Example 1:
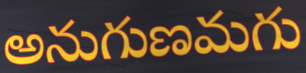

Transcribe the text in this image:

అనుగుణమగు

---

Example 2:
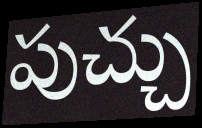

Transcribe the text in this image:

పుచ్చు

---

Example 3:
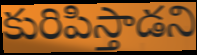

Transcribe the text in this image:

కురిపిస్తాడని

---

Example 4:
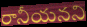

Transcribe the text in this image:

రానీయనని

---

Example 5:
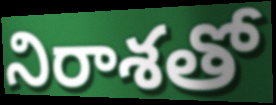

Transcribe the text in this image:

నిరాశతో